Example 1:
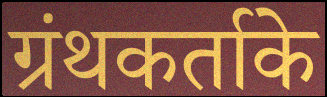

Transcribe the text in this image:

ग्रंथकर्ताके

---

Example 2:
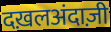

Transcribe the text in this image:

दख़लअंदाज़ी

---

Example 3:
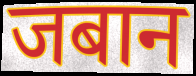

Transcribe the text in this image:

जबान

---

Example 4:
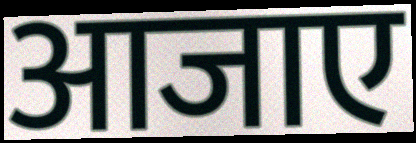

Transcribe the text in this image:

आजाए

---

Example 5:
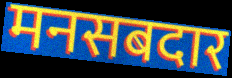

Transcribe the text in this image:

मनसबदार